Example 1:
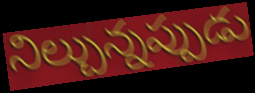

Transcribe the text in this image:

నిల్చున్నప్పుడు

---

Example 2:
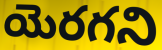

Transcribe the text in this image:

యెరగని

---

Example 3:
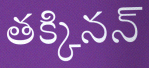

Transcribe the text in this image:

తక్కినన్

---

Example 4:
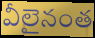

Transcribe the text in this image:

వీలైనంత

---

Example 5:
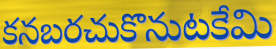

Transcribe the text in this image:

కనబరచుకొనుటకేమి